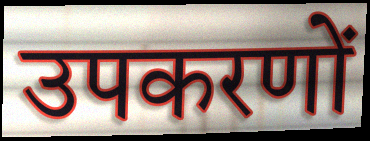
उपकरणों